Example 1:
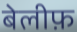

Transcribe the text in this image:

बेलीफ़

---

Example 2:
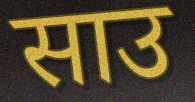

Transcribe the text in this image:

साउ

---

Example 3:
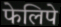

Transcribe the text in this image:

फेलिपे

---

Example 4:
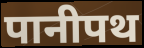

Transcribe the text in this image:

पानीपथ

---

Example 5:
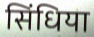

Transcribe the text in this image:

सिंधिया